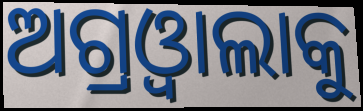
ଅଗ୍ରଓ୍ୱାଲାକୁ